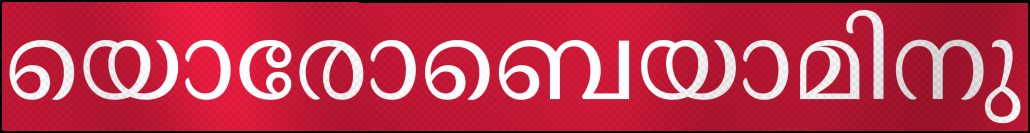
യൊരോബെയാമിനു